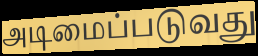
அடிமைப்படுவது